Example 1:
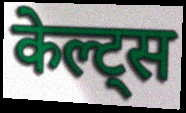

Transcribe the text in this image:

केल्ट्स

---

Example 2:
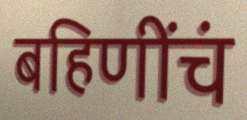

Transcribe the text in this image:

बहिणींचं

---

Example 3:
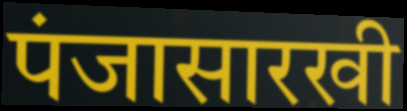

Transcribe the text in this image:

पंजासारखी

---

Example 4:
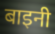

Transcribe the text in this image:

बाइनी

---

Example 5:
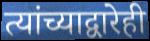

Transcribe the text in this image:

त्यांच्याद्वारेही